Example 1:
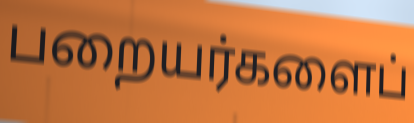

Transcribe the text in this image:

பறையர்களைப்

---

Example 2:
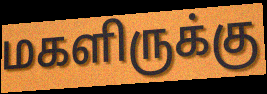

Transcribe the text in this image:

மகளிருக்கு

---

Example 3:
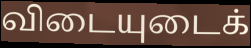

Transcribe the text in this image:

விடையுடைக்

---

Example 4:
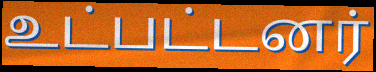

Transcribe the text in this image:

உட்பட்டனர்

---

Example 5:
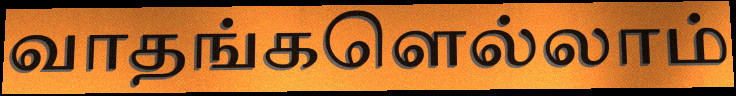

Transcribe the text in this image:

வாதங்களெல்லாம்